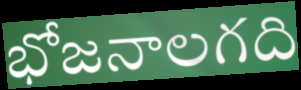
భోజనాలగది